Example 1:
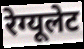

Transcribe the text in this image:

रेग्यूलेट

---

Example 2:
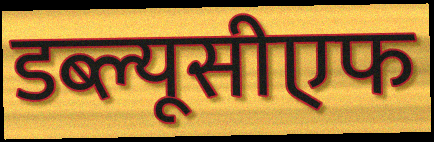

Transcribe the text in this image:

डब्ल्यूसीएफ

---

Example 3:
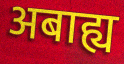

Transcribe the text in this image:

अबाह्य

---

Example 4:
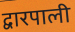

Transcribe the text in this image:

द्वारपाली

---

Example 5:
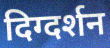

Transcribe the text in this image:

दिग्दर्शन